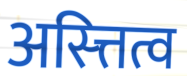
अस्त्तित्व